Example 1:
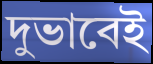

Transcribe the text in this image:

দুভাবেই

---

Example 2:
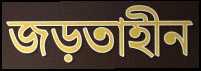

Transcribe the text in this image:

জড়তাহীন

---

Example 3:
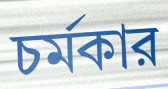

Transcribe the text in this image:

চর্মকার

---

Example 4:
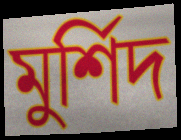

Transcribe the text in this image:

মুর্শিদ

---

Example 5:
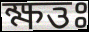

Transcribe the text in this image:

ক্ষত্তঃ